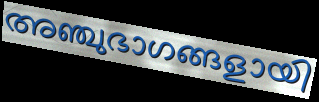
അഞ്ചുഭാഗങ്ങളായി